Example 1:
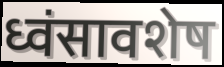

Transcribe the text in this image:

ध्वंसावशेष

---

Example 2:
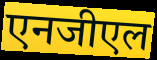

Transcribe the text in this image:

एनजीएल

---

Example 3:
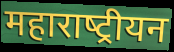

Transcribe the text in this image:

महाराष्ट्रीयन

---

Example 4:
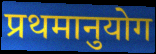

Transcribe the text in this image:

प्रथमानुयोग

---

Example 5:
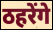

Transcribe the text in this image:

ठहरेंगे